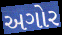
અગોર